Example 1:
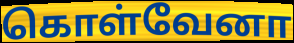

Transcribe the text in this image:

கொள்வேனா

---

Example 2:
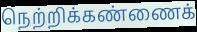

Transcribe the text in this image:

நெற்றிக்கண்ணைக்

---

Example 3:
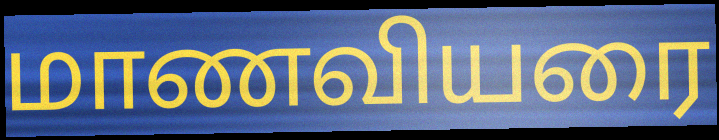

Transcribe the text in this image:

மாணவியரை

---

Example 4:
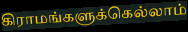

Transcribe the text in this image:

கிராமங்களுக்கெல்லாம்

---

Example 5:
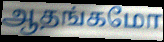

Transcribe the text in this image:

ஆதங்கமோ